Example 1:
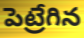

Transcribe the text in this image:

పెట్రేగిన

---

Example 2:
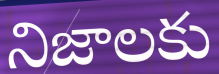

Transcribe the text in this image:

నిజాలకు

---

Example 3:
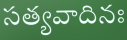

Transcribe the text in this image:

సత్యవాదినః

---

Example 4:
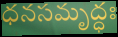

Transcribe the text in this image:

ధనసమృద్ధః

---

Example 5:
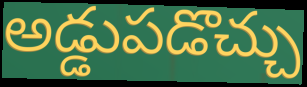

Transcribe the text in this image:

అడ్డుపడొచ్చు